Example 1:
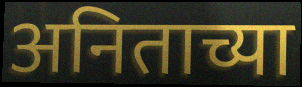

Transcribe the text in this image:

अनिताच्या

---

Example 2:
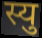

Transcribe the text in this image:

स्यु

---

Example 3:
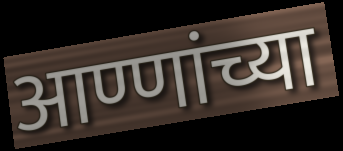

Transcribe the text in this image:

आण्णांच्या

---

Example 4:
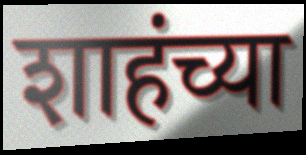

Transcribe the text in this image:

शाहंच्या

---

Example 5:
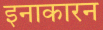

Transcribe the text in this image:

इनाकारन